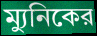
ম্যুনিকের